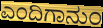
ಎಂದಿಗಾನುಂ